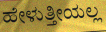
ಹೇಳುತ್ತೀಯಲ್ಲ